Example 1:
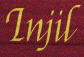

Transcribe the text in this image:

Injil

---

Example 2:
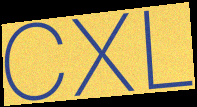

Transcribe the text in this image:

CXL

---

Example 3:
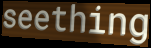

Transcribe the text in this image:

seething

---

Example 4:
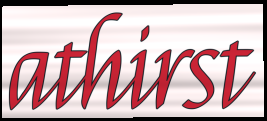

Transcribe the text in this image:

athirst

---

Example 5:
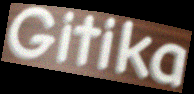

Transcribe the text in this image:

Gitika